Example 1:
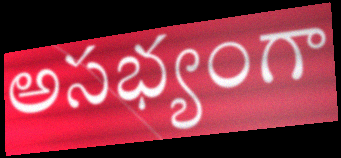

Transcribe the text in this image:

అసభ్యంగా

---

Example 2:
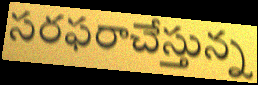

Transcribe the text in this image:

సరఫరాచేస్తున్న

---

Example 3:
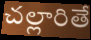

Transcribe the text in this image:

చల్లారితే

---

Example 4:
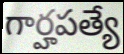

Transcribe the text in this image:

గార్హపత్యే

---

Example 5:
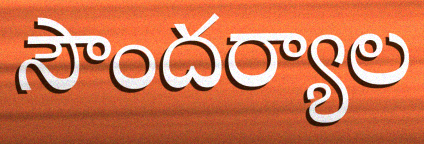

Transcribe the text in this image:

సౌందర్యాల